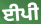
ਈਪੀ